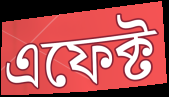
এফেক্ট